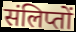
संलिप्तों